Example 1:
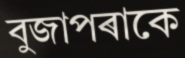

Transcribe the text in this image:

বুজাপৰাকে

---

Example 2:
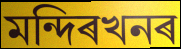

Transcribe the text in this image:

মন্দিৰখনৰ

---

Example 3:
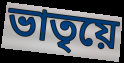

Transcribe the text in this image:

ভাতৃয়ে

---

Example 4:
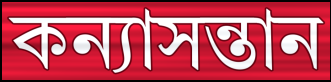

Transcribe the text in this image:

কন্যাসন্তান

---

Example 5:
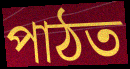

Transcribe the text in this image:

পাঠত